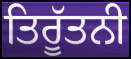
ਤਿਰੂੱਤਨੀ